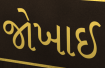
જોખાઈ